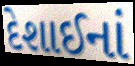
દેશાઈનાં